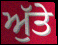
ਅੁੱਤੇ